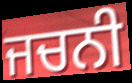
ਜਚਨੀ